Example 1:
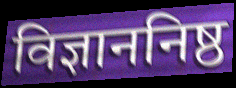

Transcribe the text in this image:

विज्ञाननिष्ठ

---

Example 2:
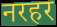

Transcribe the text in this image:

नरहर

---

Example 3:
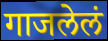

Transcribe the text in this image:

गाजलेलं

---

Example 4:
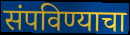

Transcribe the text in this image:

संपविण्याचा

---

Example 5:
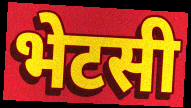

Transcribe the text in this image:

भेटसी